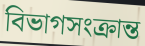
বিভাগসংক্রান্ত